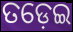
ତଡ଼େଇ